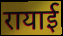
रायाई